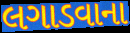
લગાડવાના